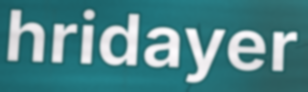
hridayer